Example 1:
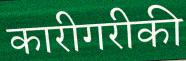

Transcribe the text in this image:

कारीगरीकी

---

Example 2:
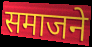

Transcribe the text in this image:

समाजने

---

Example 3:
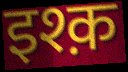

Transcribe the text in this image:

इश्क़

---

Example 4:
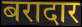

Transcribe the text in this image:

बरादार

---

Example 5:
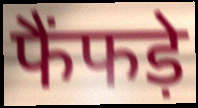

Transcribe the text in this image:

फैंफड़े